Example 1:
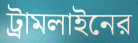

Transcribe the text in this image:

ট্রামলাইনের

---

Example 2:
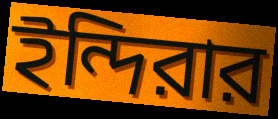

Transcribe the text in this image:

ইন্দিরার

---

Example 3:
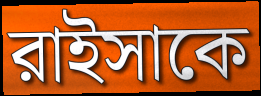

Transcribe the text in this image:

রাইসাকে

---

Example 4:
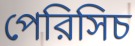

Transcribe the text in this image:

পেরিসিচ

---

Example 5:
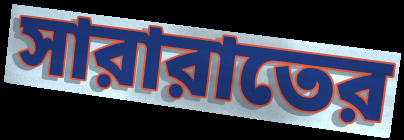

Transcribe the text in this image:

সারারাতের